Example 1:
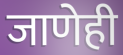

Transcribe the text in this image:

जाणेही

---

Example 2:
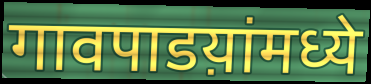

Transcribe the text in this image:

गावपाडय़ांमध्ये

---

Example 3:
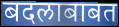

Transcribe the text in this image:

बदलाबाबत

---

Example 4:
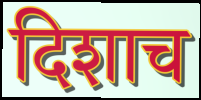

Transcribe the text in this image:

दिशाच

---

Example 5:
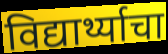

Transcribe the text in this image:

विद्यार्थ्याचा